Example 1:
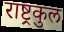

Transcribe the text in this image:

राष्ट्रकुल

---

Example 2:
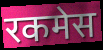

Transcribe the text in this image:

रकमेस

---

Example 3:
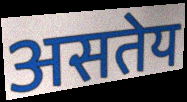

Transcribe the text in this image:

असतेय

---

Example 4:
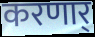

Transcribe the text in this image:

करणार्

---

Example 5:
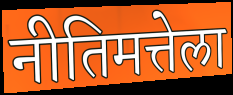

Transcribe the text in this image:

नीतिमत्तेला